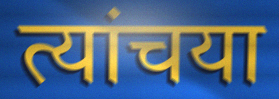
त्यांचया